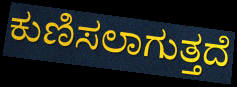
ಕುಣಿಸಲಾಗುತ್ತದೆ